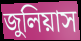
জুলিয়াস